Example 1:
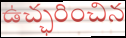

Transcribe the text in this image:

ఉచ్ఛరించిన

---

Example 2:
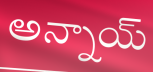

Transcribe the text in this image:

అన్నాయ్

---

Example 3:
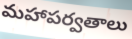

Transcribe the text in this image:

మహాపర్వతాలు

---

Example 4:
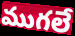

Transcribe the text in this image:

ముగలే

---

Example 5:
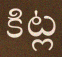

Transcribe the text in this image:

కిట్ల